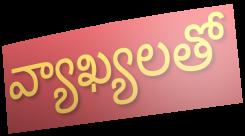
వ్యాఖ్యలతో